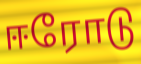
ஈரோடு